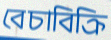
বেচাবিক্রি